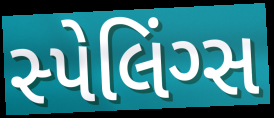
સ્પેલિંગ્સ